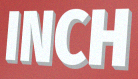
INCH